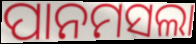
ପାନମସଲା